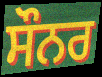
ਸੌਨਰ